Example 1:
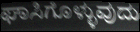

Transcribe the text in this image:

ಘಾಸಿಗೊಳ್ಳುವುದು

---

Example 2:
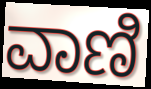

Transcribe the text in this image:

ವಾಣಿ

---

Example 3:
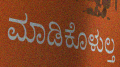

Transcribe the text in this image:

ಮಾಡಿಕೊಳುಲ್ತ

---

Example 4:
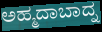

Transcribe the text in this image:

ಅಹ್ಮದಾಬಾದ್ನ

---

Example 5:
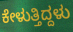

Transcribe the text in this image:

ಕೇಳುತ್ತಿದ್ದಳು